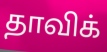
தாவிக்